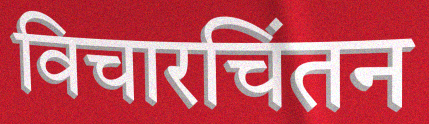
विचारचिंतन